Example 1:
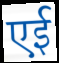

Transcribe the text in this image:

एई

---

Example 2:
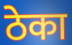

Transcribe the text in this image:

ठेका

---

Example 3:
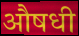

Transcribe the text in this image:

औषधी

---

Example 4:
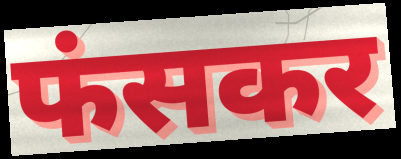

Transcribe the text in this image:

फंसकर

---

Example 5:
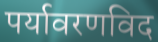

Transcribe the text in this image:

पर्यावरणविद